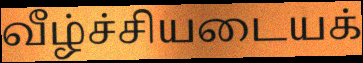
வீழ்ச்சியடையக்